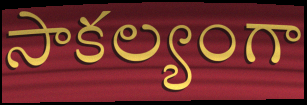
సాకల్యంగా